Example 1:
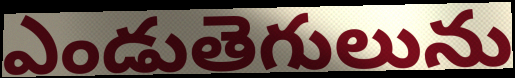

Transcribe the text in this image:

ఎండుతెగులును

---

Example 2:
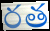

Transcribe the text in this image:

రత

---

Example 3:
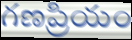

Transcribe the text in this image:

గణప్రియం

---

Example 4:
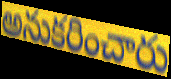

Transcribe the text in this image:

అనుకరించారు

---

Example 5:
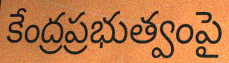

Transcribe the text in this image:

కేంద్రప్రభుత్వంపై